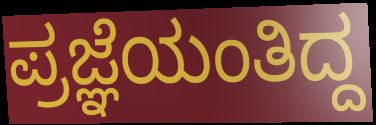
ಪ್ರಜ್ಞೆಯಂತಿದ್ದ